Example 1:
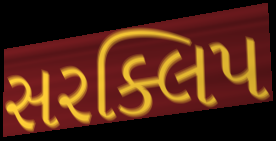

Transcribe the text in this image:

સરક્લિપ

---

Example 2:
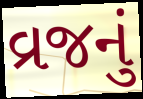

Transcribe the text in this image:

વ્રજનું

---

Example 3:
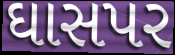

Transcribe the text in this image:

ઘાસપર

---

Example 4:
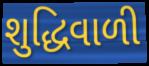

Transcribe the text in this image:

શુદ્ધિવાળી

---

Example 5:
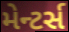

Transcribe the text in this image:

મેન્ટર્સ